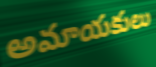
అమాయకులు